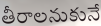
తీరాలనుకునే